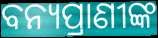
ବନ୍ୟପ୍ରାଣୀଙ୍କ